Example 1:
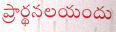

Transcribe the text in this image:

ప్రార్థనలయందు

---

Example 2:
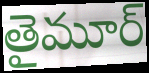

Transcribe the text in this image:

తైమూర్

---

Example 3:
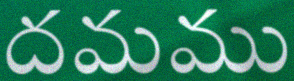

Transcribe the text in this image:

దమము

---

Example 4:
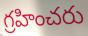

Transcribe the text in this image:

గ్రహించరు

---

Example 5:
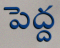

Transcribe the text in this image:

పెద్ద